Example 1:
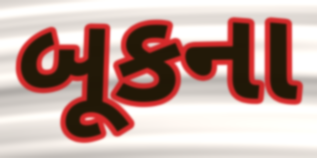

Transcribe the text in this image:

બૂકના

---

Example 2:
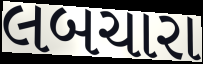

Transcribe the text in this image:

લબચારા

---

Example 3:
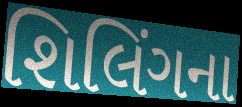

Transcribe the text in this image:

શિલિંગના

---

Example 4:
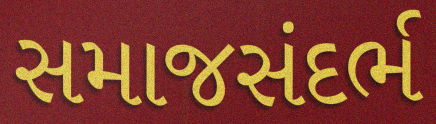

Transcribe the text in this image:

સમાજસંદર્ભ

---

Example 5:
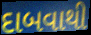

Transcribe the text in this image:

દાબવાથી